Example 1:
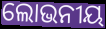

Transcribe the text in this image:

ଲୋଭନୀୟ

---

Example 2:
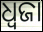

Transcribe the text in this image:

ଧ୍ୱଜା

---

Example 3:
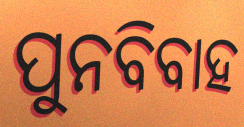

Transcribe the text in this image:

ପୁନବିବାହ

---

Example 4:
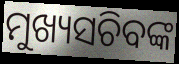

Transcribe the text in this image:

ମୁଖ୍ୟସଚିବଙ୍କ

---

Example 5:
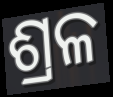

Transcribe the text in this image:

ଶ୍ରଳ